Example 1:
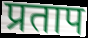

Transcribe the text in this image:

प्रताप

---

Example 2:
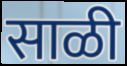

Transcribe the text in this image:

साळी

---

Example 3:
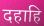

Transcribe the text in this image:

दहाहि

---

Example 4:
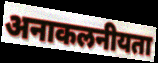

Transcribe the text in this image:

अनाकलनीयता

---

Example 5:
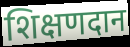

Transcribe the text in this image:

शिक्षणदान